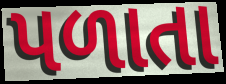
પળાતા